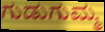
ಗುಡುಗುಮ್ಮ